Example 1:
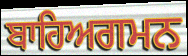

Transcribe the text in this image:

ਬਾਹਿਅਗਮਨ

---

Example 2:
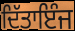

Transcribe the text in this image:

ਦਿੱਤਾਇੰਜ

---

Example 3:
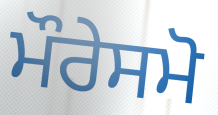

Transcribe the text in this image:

ਮੌਰੇਸਮੋ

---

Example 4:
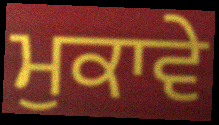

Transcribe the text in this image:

ਮੁਕਾਵੇ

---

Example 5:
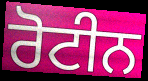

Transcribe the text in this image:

ਰੋਟੀਨ